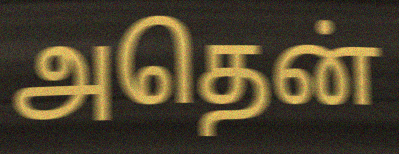
அதென்